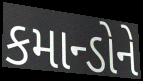
કમાન્ડોને